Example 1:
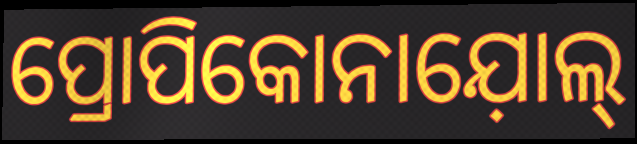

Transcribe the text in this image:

ପ୍ରୋପିକୋନାଯ଼ୋଲ୍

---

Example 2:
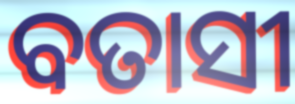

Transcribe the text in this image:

ବତାସୀ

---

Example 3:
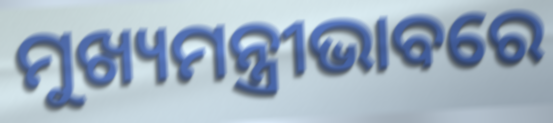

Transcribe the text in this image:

ମୁଖ୍ୟମନ୍ତ୍ରୀଭାବରେ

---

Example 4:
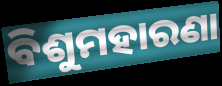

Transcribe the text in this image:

ବିଶୁମହାରଣା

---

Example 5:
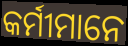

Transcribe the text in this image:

କର୍ମୀମାନେ